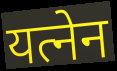
यत्नेन